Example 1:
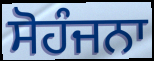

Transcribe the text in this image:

ਸੋਹੰਜਨਾ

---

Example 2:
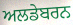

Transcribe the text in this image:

ਅਲਡੇਬਰਨ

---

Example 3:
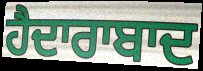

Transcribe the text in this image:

ਹੈਦਾਰਾਬਾਦ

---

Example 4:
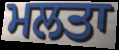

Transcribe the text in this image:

ਮਲਤਾ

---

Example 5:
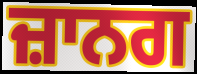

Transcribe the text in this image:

ਜ਼ਾਨਗ